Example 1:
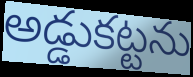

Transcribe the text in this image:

అడ్డుకట్టను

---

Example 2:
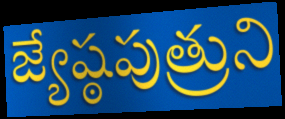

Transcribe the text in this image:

జ్యేష్ఠపుత్రుని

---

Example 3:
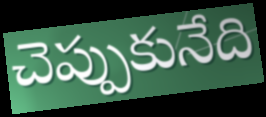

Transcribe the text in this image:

చెప్పుకునేది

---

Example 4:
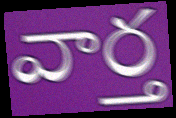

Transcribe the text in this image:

వార్త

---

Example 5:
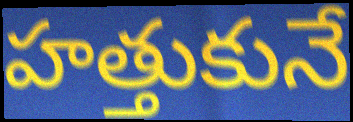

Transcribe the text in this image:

హత్తుకునే